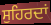
ਸੁਹਿਰਦਾਂ